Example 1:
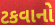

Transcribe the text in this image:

ટકવાનો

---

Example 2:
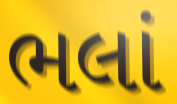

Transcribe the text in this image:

ભલાં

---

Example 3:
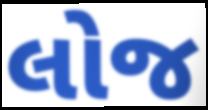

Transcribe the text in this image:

લોજ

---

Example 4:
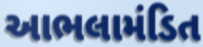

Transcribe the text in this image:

આભલામંડિત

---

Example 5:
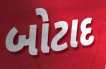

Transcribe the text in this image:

બોટાદ